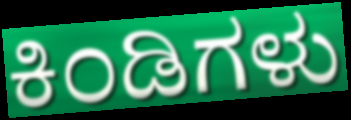
ಕಿಂಡಿಗಳು